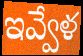
ఇవ్వేళ